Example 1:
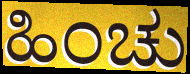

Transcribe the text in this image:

ಹಿಂಚು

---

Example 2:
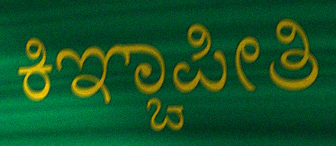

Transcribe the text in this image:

ಕಿಞ್ಚಾಪೀತಿ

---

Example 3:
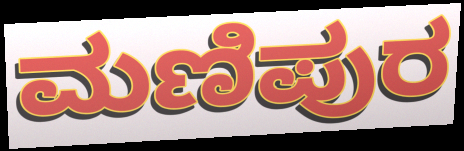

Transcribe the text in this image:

ಮಣಿಪುರ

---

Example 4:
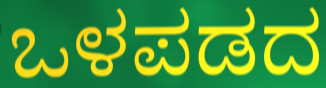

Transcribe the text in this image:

ಒಳಪಡದ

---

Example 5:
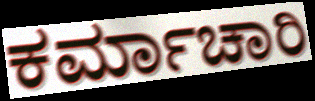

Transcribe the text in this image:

ಕರ್ಮಾಚಾರಿ